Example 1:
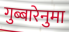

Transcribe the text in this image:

गुब्बारेनुमा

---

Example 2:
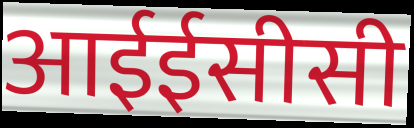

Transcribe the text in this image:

आईईसीसी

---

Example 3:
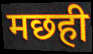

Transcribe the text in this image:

मछही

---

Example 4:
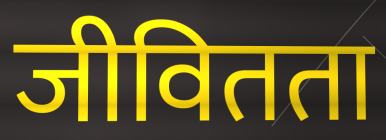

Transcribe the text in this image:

जीवितता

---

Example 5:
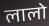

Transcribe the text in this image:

लालो